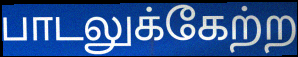
பாடலுக்கேற்ற